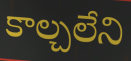
కాల్చలేని